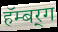
हॅम्बर्ग